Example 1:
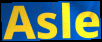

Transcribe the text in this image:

Asle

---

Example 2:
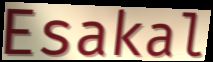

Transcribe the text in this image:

Esakal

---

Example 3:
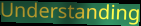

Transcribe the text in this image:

Understanding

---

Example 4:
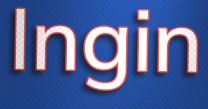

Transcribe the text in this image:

Ingin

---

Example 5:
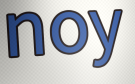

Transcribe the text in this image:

noy